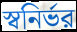
স্বনির্ভর